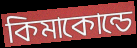
কিমাকোন্ডে